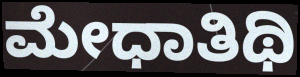
ಮೇಧಾತಿಥಿ